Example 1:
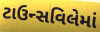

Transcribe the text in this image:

ટાઉન્સવિલેમાં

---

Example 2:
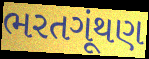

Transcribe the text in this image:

ભરતગૂંથણ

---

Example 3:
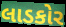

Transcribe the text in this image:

લાડકોર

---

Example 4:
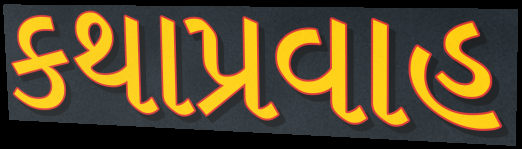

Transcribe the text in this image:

કથાપ્રવાહ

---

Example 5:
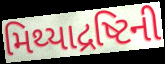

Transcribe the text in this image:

મિથ્યાદ્રષ્ટિની